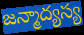
జన్మాద్యస్య